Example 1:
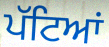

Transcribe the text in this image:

ਪੱਟਿਆਂ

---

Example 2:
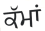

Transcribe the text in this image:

ਕੱਮਾਂ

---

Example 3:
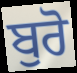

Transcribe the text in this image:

ਬੁਰੋ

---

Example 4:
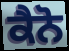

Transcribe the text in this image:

ਕੈਨੋ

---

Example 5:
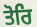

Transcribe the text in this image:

ਤੋਰਿ